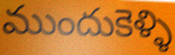
ముందుకెళ్ళి